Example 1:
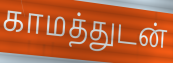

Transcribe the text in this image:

காமத்துடன்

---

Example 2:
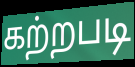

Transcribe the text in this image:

கற்றபடி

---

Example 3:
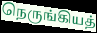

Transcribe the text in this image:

நெருங்கியத்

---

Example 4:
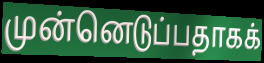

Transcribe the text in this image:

முன்னெடுப்பதாகக்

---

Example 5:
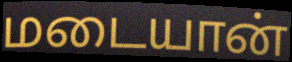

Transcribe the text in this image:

மடையான்